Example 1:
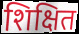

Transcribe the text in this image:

शिक्षित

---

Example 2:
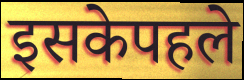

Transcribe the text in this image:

इसकेपहले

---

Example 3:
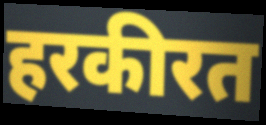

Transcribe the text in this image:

हरकीरत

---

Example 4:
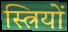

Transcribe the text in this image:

स्त्रियों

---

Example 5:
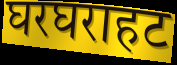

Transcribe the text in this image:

घरघराहट